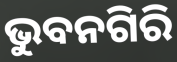
ଭୁବନଗିରି